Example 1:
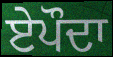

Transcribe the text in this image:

ਏਪੌਦਾ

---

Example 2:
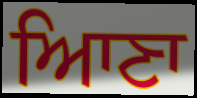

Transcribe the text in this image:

ਆਿਣਾ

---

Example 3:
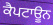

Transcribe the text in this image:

ਕੈਪਟਾਊਨ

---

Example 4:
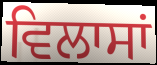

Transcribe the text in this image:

ਵਿਲਾਸਾਂ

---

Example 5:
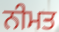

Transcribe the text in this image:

ਨੀਮਤ